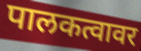
पालकत्वावर